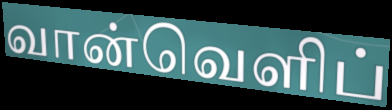
வான்வெளிப்